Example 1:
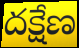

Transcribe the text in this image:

దక్షేణ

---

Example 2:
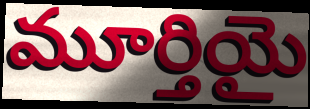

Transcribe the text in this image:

మూర్తియై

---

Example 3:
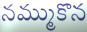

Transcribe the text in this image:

నమ్ముకొన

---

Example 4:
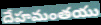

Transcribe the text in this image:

దేహమంతయు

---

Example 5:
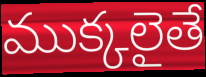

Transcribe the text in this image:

ముక్కలైతే